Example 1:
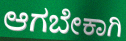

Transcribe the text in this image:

ಆಗಬೇಕಾಗಿ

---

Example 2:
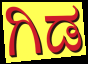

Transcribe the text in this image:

ಗಿಡ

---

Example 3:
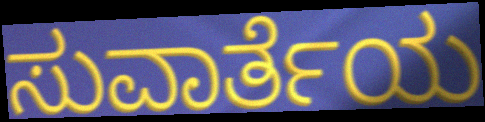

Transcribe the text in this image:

ಸುವಾರ್ತೆಯ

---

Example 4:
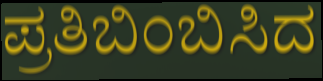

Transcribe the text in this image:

ಪ್ರತಿಬಿಂಬಿಸಿದ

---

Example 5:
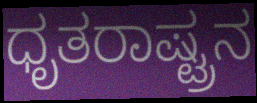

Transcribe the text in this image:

ಧೃತರಾಷ್ಟ್ರನ